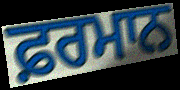
ਫ਼ਰਮਾਨ